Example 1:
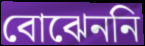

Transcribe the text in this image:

বোঝেননি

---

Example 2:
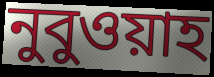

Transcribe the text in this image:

নুবুওয়াহ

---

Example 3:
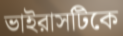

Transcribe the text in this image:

ভাইরাসটিকে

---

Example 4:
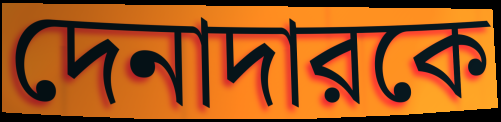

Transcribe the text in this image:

দেনাদারকে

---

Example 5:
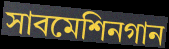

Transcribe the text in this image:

সাবমেশিনগান